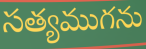
సత్యముగను